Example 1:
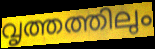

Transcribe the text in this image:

വൃത്തത്തിലും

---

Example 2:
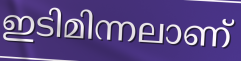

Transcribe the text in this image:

ഇടിമിന്നലാണ്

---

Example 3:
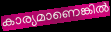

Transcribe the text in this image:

കാര്യമാണെങ്കിൽ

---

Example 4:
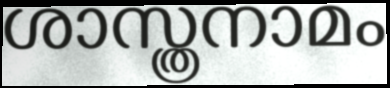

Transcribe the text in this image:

ശാസ്ത്രനാമം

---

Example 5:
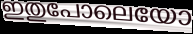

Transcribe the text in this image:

ഇതുപോലെയോ